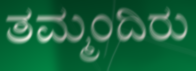
ತಮ್ಮಂದಿರು